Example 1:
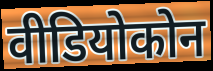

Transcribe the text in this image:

वीडियोकोन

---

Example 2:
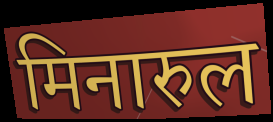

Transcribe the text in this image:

मिनारुल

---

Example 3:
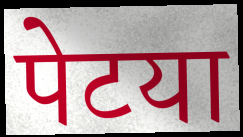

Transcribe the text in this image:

पेटया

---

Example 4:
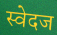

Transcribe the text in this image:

स्वेदज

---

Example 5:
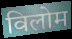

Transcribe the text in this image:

विलोम